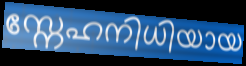
സ്നേഹനിധിയായ